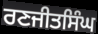
ਰਣਜੀਤਸਿੰਘ